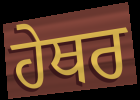
ਹੇਥਰ